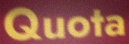
Quota